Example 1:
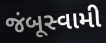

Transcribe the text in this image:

જંબૂસ્વામી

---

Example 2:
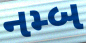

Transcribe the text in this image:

નમ્બ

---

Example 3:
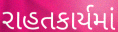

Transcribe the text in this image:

રાહતકાર્યમાં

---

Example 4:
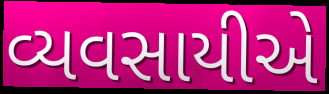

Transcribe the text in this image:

વ્યવસાયીએ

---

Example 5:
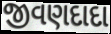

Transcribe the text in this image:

જીવણદાદા